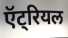
ऍट्रियल